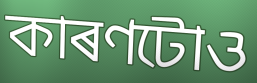
কাৰণটোও